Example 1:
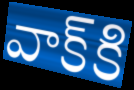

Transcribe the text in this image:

వాక్‌కి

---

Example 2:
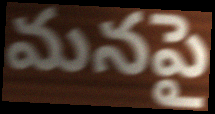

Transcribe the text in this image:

మనపై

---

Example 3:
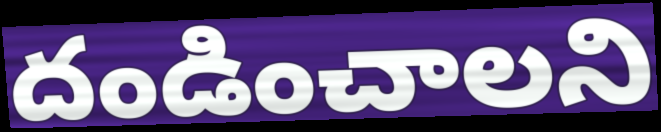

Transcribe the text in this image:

దండించాలని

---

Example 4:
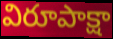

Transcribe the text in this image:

విరూపాక్షా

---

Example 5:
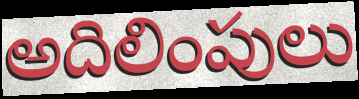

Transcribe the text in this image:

అదిలింపులు